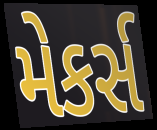
મેકર્સ